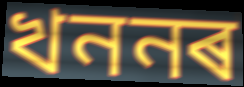
খননৰ